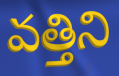
వత్తిని